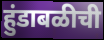
हुंडाबळीची